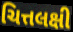
ચિત્તલક્ષી